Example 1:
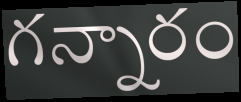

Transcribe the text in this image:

గన్నారం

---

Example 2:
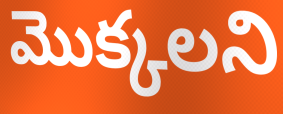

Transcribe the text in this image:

మొక్కలని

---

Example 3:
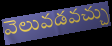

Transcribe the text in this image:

వెలువడవచ్చు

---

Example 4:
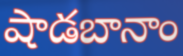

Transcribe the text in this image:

షాడబానాం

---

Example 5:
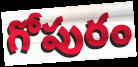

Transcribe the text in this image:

గోపురం